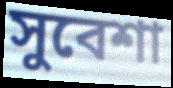
সুবেশা